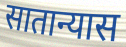
सातान्यास